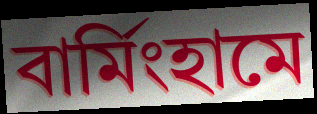
বার্মিংহামে